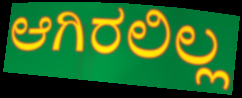
ಆಗಿರಲಿಲ್ಲ